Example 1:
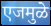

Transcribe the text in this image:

एजमुळे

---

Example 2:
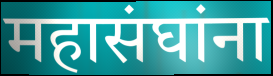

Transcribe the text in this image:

महासंघांना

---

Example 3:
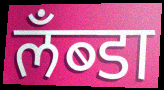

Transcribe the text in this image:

लँब्डा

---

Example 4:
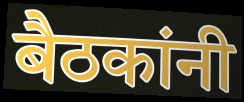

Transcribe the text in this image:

बैठकांनी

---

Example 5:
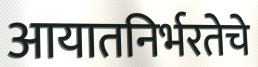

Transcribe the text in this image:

आयातनिर्भरतेचे